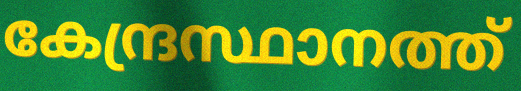
കേന്ദ്രസ്ഥാനത്ത്